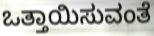
ಒತ್ತಾಯಿಸುವಂತೆ